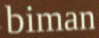
biman